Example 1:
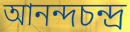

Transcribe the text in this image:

আনন্দচন্দ্র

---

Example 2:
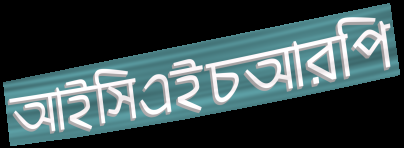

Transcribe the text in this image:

আইসিএইচআরপি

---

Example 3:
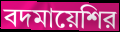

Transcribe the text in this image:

বদমায়েশির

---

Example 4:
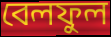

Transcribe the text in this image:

বেলফুল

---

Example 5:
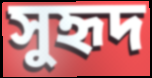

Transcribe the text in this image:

সুহৃদ